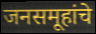
जनसमूहांचे